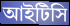
আইটিসি